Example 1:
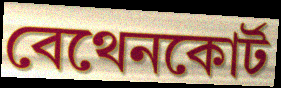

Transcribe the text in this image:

বেথেনকোর্ট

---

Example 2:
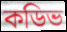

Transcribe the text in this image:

কডিভ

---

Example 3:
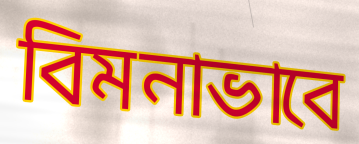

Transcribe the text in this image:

বিমনাভাবে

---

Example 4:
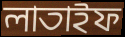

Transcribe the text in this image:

লাতাইফ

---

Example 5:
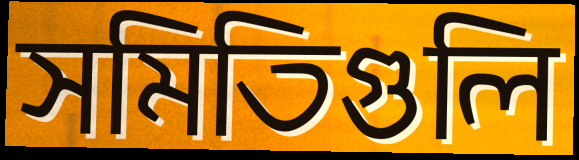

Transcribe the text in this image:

সমিতিগুলি